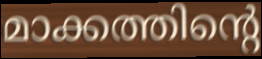
മാക്കത്തിന്റെ